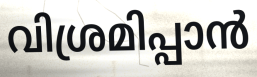
വിശ്രമിപ്പാൻ